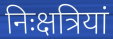
निःक्षत्रियां